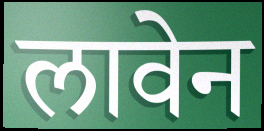
लावेन